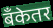
बँकेतर